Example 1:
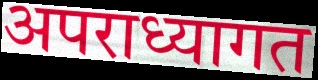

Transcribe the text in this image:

अपराध्यागत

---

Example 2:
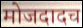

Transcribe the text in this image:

मोजदादच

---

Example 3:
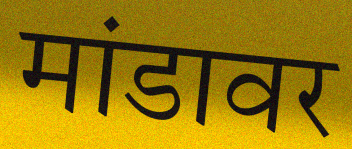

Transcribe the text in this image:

मांडावर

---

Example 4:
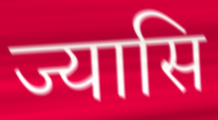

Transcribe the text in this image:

ज्यासि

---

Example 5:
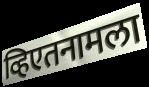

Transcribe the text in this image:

व्हिएतनामला